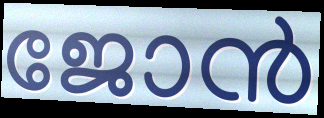
ജോൻ